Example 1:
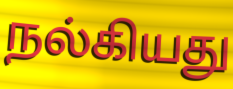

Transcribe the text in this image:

நல்கியது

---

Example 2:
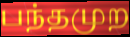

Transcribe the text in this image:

பந்தமுற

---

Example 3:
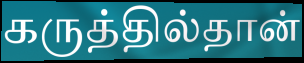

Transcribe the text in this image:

கருத்தில்தான்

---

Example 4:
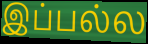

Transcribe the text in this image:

இப்பல்ல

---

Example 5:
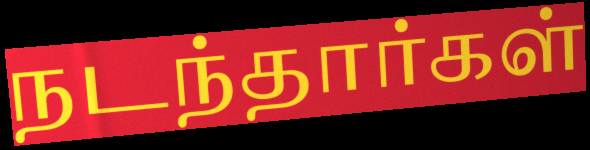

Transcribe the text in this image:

நடந்தார்கள்